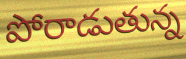
పోరాడుతున్న